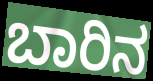
ಬಾರಿನ